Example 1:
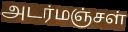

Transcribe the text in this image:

அடர்மஞ்சள்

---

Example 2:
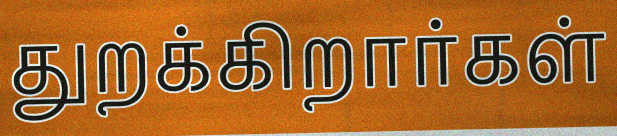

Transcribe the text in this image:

துறக்கிறார்கள்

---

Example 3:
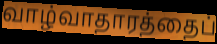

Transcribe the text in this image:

வாழ்வாதாரத்தைப்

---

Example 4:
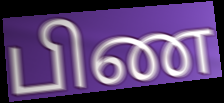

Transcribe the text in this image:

பிண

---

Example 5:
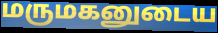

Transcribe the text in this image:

மருமகனுடைய